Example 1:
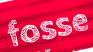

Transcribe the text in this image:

fosse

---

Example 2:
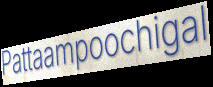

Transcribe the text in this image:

Pattaampoochigal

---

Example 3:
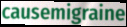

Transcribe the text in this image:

causemigraine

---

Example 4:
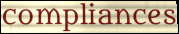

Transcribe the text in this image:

compliances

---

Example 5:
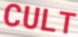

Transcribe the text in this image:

CULT